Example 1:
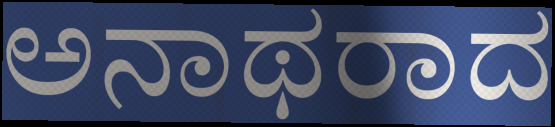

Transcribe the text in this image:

ಅನಾಥರಾದ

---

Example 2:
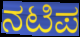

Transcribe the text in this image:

ನಟಿಪ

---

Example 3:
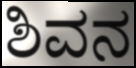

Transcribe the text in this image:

ಶಿವನ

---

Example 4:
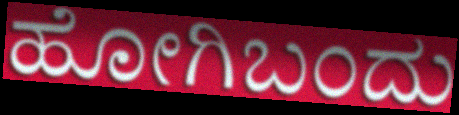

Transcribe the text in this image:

ಹೋಗಿಬಂದು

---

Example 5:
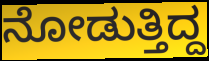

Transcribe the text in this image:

ನೋಡುತ್ತಿದ್ದ